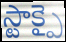
స్టాక్పై